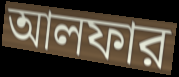
আলফার